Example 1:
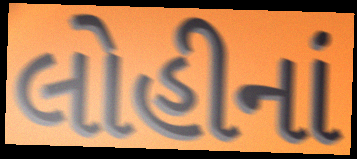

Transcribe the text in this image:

લોહીનાં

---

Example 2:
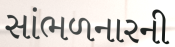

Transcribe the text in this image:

સાંભળનારની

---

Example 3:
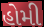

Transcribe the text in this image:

હોમી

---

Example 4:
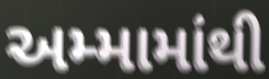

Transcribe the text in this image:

અમ્મામાંથી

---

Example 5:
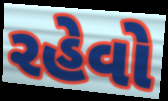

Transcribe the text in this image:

રહેવો